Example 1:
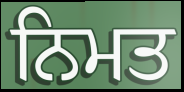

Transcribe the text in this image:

ਨਿਮਤ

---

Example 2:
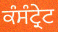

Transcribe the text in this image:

ਕੰਸੰਟ੍ਰੇਟ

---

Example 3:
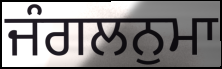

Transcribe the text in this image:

ਜੰਗਲਨੁਮਾ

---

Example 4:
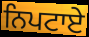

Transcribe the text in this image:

ਨਿਪਟਾਏ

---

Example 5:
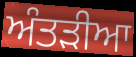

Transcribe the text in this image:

ਅੰਤੜੀਆ